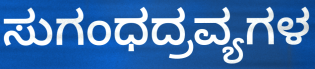
ಸುಗಂಧದ್ರವ್ಯಗಳ